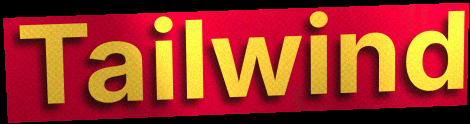
Tailwind